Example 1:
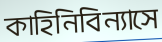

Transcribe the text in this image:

কাহিনিবিন্যাসে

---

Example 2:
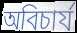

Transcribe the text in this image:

অবিচার্য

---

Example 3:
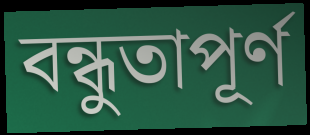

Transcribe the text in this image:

বন্ধুতাপূর্ণ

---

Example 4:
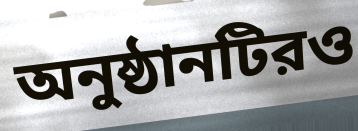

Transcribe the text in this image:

অনুষ্ঠানটিরও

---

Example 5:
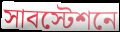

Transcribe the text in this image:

সাবস্টেশনে